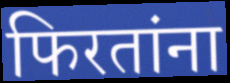
फिरतांना